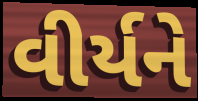
વીર્યને